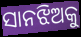
ସାନଝିଅକୁ